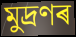
মুদ্ৰণৰ